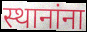
स्थानांना